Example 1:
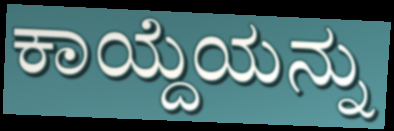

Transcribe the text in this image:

ಕಾಯ್ದೆಯನ್ನು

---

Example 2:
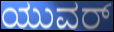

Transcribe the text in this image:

ಯುವರ್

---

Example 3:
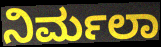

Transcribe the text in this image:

ನಿರ್ಮಲಾ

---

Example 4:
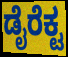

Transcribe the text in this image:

ಡೈರೆಕ್ಟ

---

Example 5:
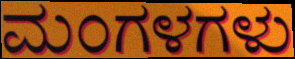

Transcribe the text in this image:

ಮಂಗಳಗಳು